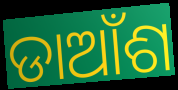
ଡାଆଁଶ